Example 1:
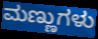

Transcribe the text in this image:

ಮಣ್ಣುಗಳು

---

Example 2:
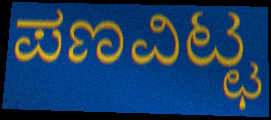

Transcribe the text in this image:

ಪಣವಿಟ್ಟ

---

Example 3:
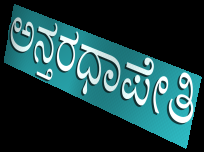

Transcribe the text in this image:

ಅನ್ತರಧಾಪೇತಿ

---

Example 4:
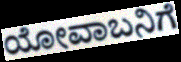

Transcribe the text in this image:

ಯೋವಾಬನಿಗೆ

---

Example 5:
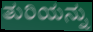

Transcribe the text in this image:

ತುರಿಯನ್ನು